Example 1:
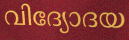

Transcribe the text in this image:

വിദ്യോദയ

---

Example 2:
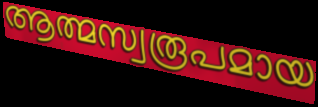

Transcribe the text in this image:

ആത്മസ്വരൂപമായ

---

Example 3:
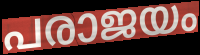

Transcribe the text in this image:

പരാജയം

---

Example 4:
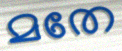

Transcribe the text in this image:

മതേ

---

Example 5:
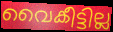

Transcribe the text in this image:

വൈകീട്ടില്ല